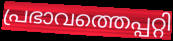
പ്രഭാവത്തെപ്പറ്റി